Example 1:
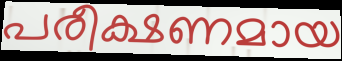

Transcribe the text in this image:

പരീക്ഷണമായ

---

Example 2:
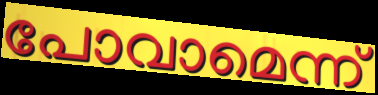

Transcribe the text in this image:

പോവാമെന്ന്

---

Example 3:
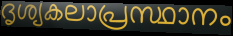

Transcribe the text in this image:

ദൃശ്യകലാപ്രസ്ഥാനം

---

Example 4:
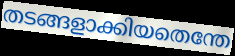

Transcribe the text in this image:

തടങ്ങളാക്കിയതെന്തേ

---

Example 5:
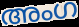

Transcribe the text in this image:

അംഗ